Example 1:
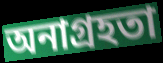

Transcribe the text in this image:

অনাগ্রহতা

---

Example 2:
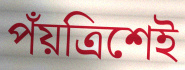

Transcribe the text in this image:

পঁয়ত্রিশেই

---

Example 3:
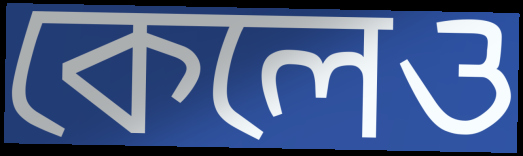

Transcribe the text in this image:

কেলেও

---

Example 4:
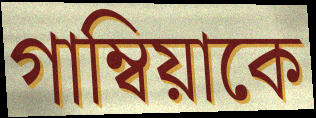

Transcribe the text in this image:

গাম্বিয়াকে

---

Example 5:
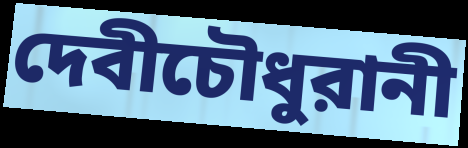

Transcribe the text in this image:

দেবীচৌধুরানী